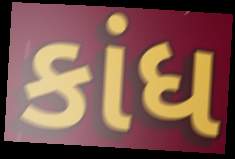
કાંધ